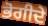
ਭੋਗੀਦੇ